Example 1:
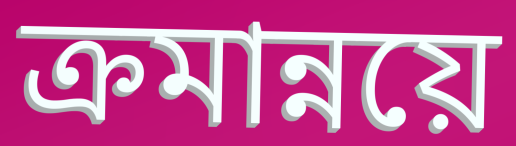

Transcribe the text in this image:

ক্রমান্নয়ে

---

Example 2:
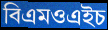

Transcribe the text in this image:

বিএমওএইচ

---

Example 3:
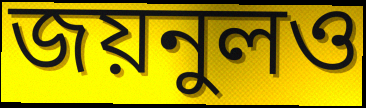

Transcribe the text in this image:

জয়নুলও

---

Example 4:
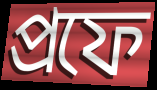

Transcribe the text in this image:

প্রফে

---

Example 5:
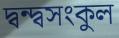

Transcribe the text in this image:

দ্বন্দ্বসংকুল